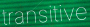
transitive